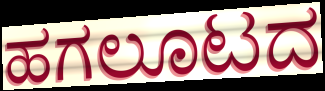
ಹಗಲೂಟದ